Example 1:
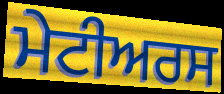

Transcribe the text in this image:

ਮੇਟੀਅਰਸ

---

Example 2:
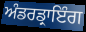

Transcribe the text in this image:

ਅੰਡਰਡ੍ਰਾਇੰਗ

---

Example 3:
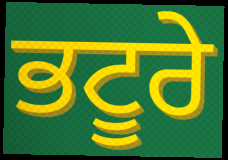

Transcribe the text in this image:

ਭਟੂਰੇ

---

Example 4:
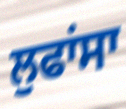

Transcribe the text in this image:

ਲੁਫਾਂਸਾ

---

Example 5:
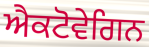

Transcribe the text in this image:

ਐਕਟੋਵੇਗਿਨ